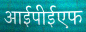
आईपीईएफ